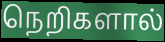
நெறிகளால்